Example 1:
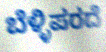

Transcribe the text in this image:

ಬೆಳ್ಳಿಪರದೆ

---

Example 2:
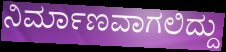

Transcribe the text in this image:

ನಿರ್ಮಾಣವಾಗಲಿದ್ದು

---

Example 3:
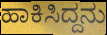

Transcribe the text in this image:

ಹಾಕಿಸಿದ್ದನು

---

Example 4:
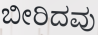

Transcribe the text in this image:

ಬೀರಿದವು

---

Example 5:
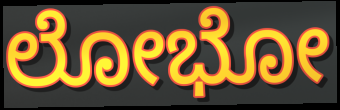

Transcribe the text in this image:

ಲೋಭೋ